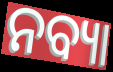
ନବ୍ୟା